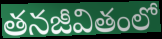
తనజీవితంలో